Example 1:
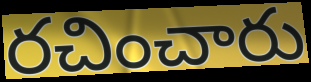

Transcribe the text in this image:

రచించారు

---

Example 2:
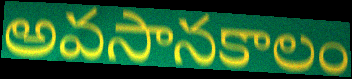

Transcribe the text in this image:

అవసానకాలం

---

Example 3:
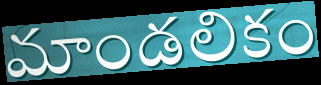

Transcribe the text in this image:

మాండలికం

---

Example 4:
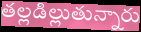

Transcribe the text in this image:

తల్లడిల్లుతున్నారు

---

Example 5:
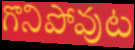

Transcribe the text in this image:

గొనిపోవుట